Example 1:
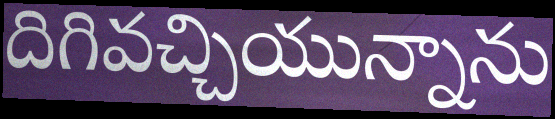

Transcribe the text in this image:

దిగివచ్చియున్నాను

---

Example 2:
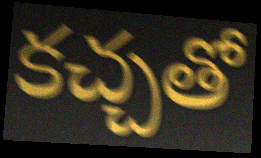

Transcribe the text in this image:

కచ్చతో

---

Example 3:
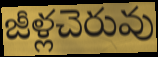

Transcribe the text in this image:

జీళ్లచెరువు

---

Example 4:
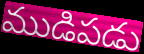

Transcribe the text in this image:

ముడిపడు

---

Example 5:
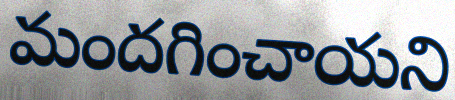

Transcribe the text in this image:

మందగించాయని